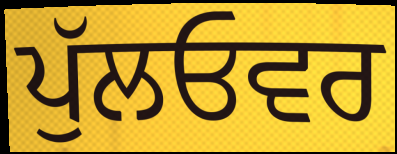
ਪੁੱਲਓਵਰ